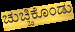
ಚುಚ್ಚಿಕೊಂಡು